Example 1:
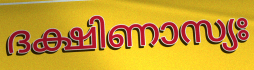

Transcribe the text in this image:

ദക്ഷിണാസ്യഃ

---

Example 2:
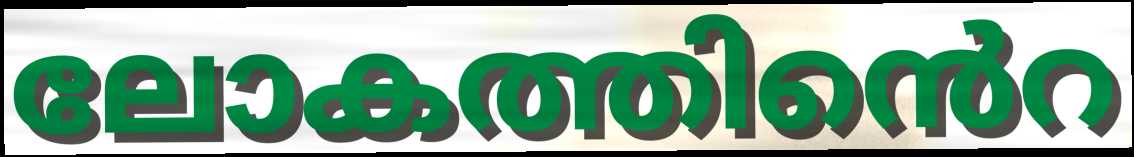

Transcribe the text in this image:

ലോകത്തിൻെറ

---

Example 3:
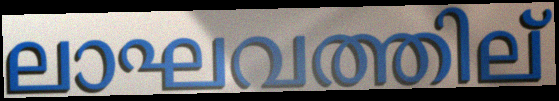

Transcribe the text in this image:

ലാഘവത്തില്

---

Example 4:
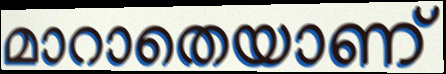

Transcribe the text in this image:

മാറാതെയാണ്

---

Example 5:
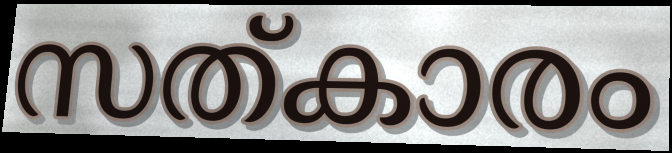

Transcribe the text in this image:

സത്കാരം